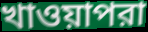
খাওয়াপরা